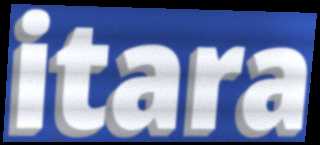
itara